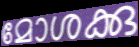
മോശക്കു